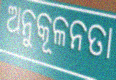
ଅନୁକୂଳନତା